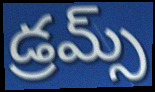
డ్రమ్స్